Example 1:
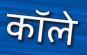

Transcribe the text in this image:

कॉले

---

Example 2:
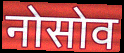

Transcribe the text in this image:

नोसोव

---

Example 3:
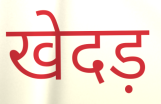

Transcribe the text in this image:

खेदड़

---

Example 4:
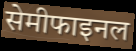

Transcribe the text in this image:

सेमीफाइनल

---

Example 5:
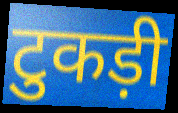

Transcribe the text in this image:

टुकड़ी